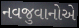
નવજુવાનોએ